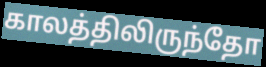
காலத்திலிருந்தோ